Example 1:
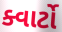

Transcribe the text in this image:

ક્વાર્ટો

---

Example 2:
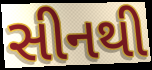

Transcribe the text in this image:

સીનથી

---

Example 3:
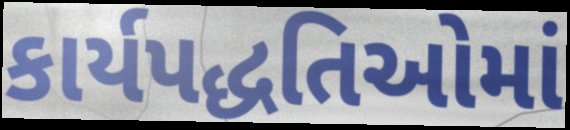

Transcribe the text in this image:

કાર્યપદ્ધતિઓમાં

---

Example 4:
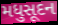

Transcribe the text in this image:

મધુસૂદન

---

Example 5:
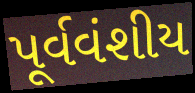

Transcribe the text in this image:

પૂર્વવંશીય